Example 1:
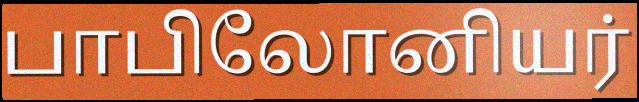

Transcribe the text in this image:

பாபிலோனியர்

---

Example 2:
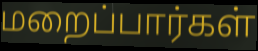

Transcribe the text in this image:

மறைப்பார்கள்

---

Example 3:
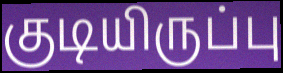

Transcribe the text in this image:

குடியிருப்பு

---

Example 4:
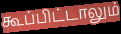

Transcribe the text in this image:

கூப்பிட்டாலும்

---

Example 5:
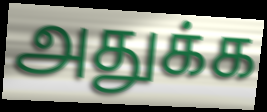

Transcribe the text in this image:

அதுக்க